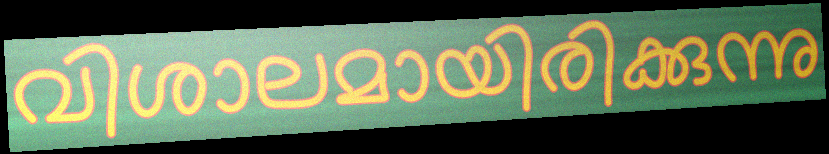
വിശാലമായിരിക്കുന്നു